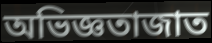
অভিজ্ঞতাজাত